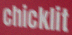
chicklit